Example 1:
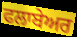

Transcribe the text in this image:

ਫਲਾਬੇਅਰ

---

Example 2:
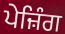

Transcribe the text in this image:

ਪੇਜ਼ਿੰਗ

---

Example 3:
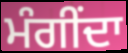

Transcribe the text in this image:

ਮੰਗੀਂਦਾ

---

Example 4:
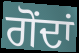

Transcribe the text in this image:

ਗੋਂਦਾਂ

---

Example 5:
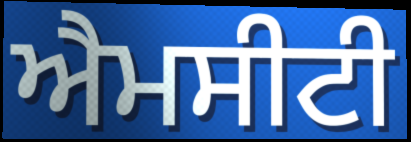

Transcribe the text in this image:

ਐਮਸੀਟੀ